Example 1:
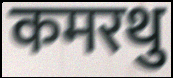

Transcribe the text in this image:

कमरथु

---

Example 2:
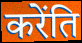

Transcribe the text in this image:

करेंति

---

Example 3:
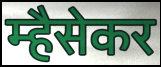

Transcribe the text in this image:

म्हैसेकर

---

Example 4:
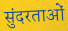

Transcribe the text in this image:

सुंदरताओं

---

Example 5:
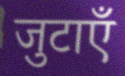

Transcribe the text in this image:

जुटाएँ